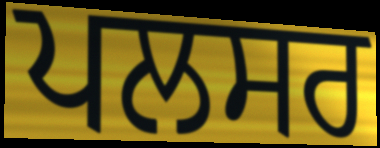
ਪਲਸਰ